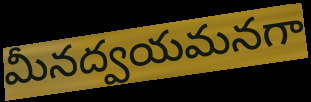
మీనద్వయమనగా